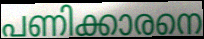
പണിക്കാരനെ